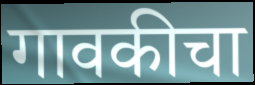
गावकीचा